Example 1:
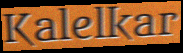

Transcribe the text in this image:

Kalelkar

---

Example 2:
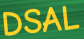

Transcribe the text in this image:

DSAL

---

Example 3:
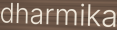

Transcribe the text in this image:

dharmika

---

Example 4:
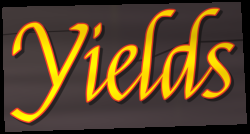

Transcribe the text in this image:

Yields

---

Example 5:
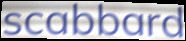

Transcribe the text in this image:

scabbard